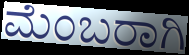
ಮೆಂಬರಾಗಿ